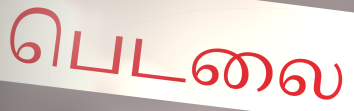
பெடலை